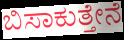
ಬಿಸಾಕುತ್ತೇನೆ